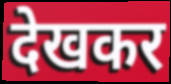
देखकर